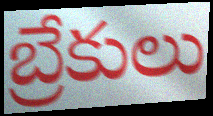
బ్రేకులు